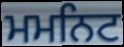
ਮਮਨਿਟ